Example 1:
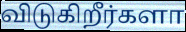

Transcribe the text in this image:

விடுகிறீர்களா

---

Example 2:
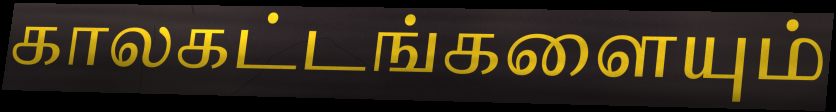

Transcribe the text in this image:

காலகட்டங்களையும்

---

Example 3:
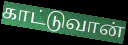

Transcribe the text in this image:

காட்டுவான்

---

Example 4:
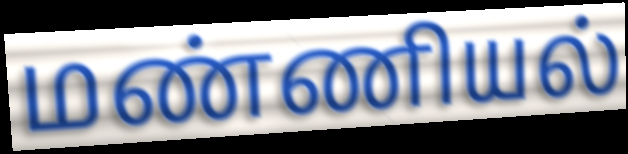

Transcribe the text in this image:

மண்ணியல்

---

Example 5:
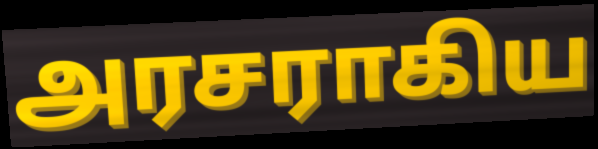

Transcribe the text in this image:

அரசராகிய